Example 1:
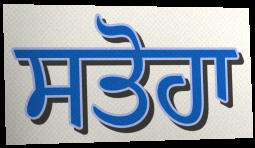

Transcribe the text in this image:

ਸਤੋਹਾ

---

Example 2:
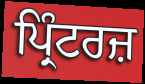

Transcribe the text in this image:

ਪ੍ਰਿੰਟਰਜ਼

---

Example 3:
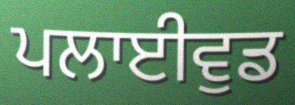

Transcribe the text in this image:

ਪਲਾਈਵੁਡ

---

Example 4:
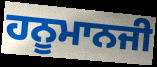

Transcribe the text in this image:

ਹਨੂਮਾਨਜੀ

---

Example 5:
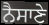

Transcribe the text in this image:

ਨੈਸਾਣੇ